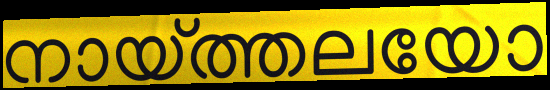
നായ്ത്തലയോ